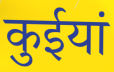
कुईयां